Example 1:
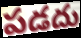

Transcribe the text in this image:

పడదు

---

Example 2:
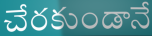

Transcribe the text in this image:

చేరకుండానే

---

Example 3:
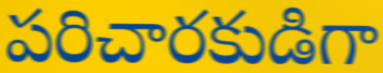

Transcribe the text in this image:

పరిచారకుడిగా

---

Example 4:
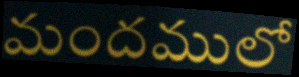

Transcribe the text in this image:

మందములో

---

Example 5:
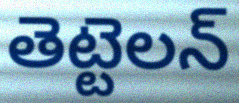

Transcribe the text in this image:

తెట్టెలన్